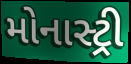
મોનાસ્ટ્રી